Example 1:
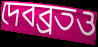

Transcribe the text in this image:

দেবব্রতও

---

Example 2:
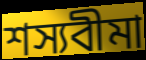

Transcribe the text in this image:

শস্যবীমা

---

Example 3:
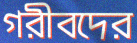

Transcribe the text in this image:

গরীবদের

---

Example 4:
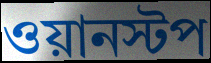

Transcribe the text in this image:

ওয়ানস্টপ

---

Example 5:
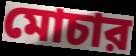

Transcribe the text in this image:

মোচার